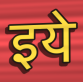
इये